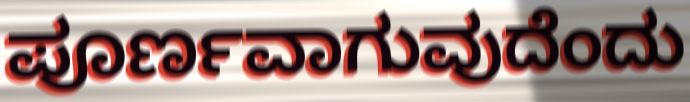
ಪೂರ್ಣವಾಗುವುದೆಂದು